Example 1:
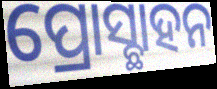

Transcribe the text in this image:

ପ୍ରୋସ୍ଛାହନ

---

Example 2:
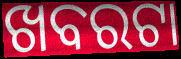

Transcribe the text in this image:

ଖବରଟା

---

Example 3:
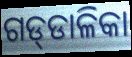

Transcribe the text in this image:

ଗଡ୍‍ଡାଳିକା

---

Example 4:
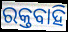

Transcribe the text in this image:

ରକ୍ତବାହି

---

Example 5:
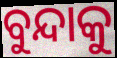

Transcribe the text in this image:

ବୁନ୍ଦାକୁ